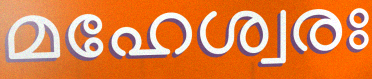
മഹേശ്വരഃ